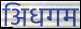
अिधगम